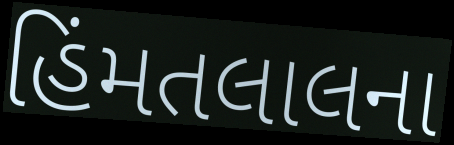
હિંમતલાલના